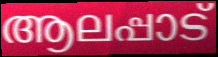
ആലപ്പാട്